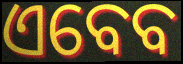
ଏବେବ